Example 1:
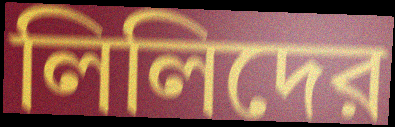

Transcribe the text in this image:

লিলিদের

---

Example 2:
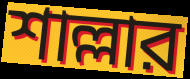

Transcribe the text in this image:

শাল্লার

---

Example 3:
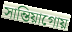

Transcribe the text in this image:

সান্তিয়াগোয়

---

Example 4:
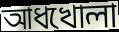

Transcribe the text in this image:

আধখোলা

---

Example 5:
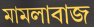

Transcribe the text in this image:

মামলাবাজ